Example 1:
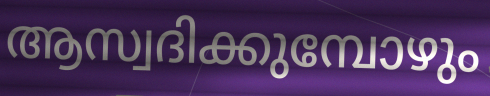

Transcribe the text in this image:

ആസ്വദിക്കുമ്പോഴും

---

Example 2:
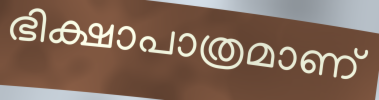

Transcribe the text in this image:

ഭിക്ഷാപാത്രമാണ്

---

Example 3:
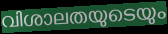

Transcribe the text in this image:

വിശാലതയുടെയും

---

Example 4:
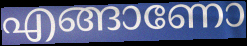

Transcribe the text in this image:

എങ്ങാണോ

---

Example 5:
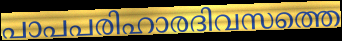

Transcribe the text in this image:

പാപപരിഹാരദിവസത്തെ